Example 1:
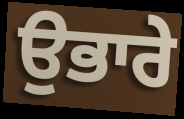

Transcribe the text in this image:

ਉਭਾਰੇ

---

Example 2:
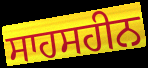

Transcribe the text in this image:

ਸਾਹਸਹੀਨ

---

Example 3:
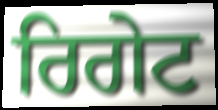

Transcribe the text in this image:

ਰਿਗੇਟ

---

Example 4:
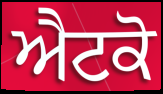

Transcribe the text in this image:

ਐਟਕੋ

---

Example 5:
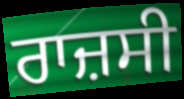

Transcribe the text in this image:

ਰਾਜ਼ਸੀ